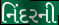
નિંદરની